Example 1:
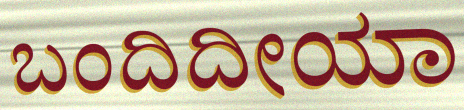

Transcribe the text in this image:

ಬಂದಿದೀಯಾ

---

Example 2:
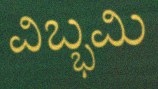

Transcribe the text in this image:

ವಿಬ್ಭಮಿ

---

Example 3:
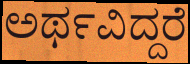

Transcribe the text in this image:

ಅರ್ಥವಿದ್ದರೆ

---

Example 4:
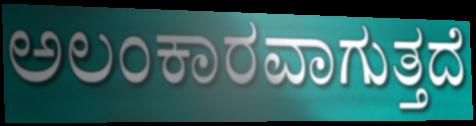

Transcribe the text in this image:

ಅಲಂಕಾರವಾಗುತ್ತದೆ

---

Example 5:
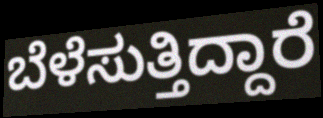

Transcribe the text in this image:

ಬೆಳೆಸುತ್ತಿದ್ದಾರೆ